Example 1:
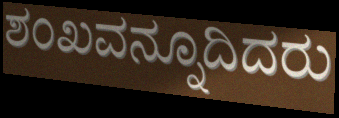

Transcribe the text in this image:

ಶಂಖವನ್ನೂದಿದರು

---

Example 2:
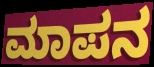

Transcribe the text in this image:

ಮಾಪನ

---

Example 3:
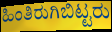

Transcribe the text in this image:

ಹಿಂತಿರುಗಿಬಿಟ್ಟರು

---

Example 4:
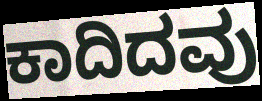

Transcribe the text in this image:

ಕಾದಿದವು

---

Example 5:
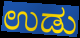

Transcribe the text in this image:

ಉಡು